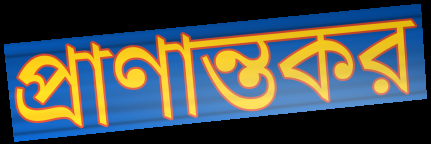
প্রাণান্তকর